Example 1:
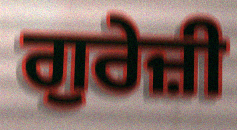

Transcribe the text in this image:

ਗੁਰੇਜ਼ੀ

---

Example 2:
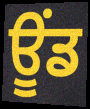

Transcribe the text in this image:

ਊਂਡ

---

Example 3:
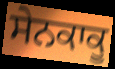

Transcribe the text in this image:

ਸੇਨਕਾਕੂ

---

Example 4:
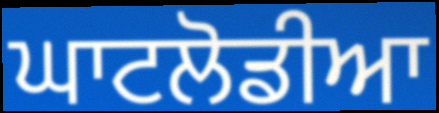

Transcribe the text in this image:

ਘਾਟਲੋਡੀਆ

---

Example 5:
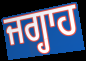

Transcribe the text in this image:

ਜਗ੍ਹਾਹ